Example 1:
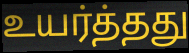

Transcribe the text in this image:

உயர்த்தது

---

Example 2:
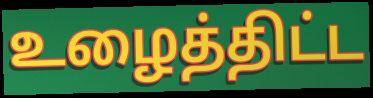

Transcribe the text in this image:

உழைத்திட்ட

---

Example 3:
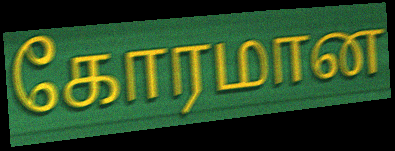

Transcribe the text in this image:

கோரமான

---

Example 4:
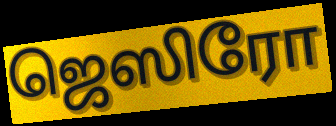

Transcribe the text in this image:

ஜெஸிரோ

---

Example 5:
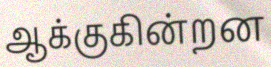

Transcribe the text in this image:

ஆக்குகின்றன